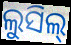
ଲୁସିଲ୍